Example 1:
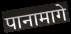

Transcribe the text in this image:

पानामागे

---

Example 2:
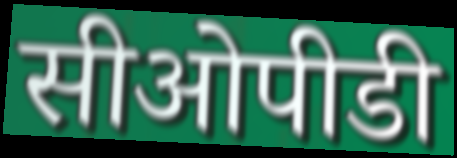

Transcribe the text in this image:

सीओपीडी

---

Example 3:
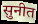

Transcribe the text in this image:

सुनीत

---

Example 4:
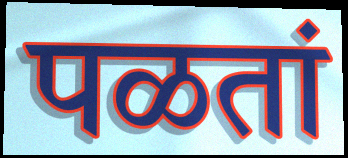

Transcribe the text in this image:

पळतां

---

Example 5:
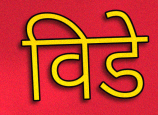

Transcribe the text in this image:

विडे